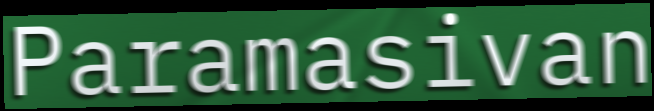
Paramasivan